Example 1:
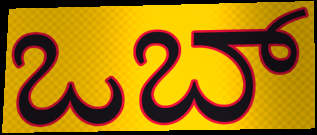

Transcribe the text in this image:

ಒಬ್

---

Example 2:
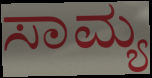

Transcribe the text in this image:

ಸಾಮ್ಯ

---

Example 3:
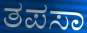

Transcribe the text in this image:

ತಪಸಾ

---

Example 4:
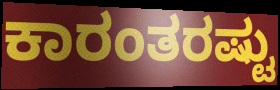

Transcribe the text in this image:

ಕಾರಂತರಷ್ಟು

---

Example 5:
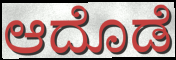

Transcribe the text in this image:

ಆದೊಡೆ